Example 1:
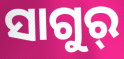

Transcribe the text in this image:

ସାଗୁର୍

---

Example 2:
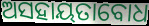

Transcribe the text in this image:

ଅସହାୟତାବୋଧ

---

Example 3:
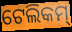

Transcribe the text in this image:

ଟେଲିକମ୍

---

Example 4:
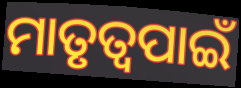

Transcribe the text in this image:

ମାତୃତ୍ୱପାଇଁ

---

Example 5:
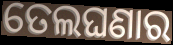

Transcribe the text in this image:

ତେଲଘଣାର